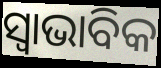
ସ୍ୱାଭାବିକ